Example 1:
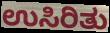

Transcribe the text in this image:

ಉಸಿರಿತು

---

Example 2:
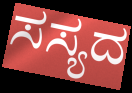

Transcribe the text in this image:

ಸಸ್ಯದ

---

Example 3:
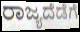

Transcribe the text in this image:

ರಾಜ್ಯದೆಡೆಗೆ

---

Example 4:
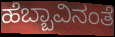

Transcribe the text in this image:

ಹೆಬ್ಬಾವಿನಂತೆ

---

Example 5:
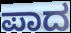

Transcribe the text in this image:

ಪಾದ